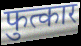
फुत्कार